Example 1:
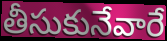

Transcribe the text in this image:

తీసుకునేవారే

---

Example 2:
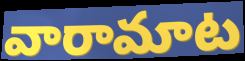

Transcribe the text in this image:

వారామాట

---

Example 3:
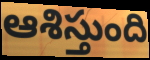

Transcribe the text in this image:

ఆశిస్తుంది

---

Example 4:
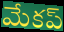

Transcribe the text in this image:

మేకప్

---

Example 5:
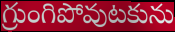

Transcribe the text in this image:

గ్రుంగిపోవుటకును